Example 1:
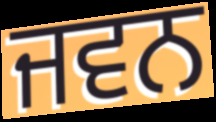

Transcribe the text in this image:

ਜਵਨ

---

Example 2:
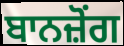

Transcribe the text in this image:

ਬਾਨਜ਼ੋਂਗ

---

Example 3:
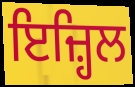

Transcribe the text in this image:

ਇਜ਼੍ਹਿਲ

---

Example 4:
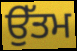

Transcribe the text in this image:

ਉੱਤਮ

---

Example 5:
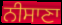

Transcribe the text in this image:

ਨੀਸਾਣਾ